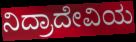
ನಿದ್ರಾದೇವಿಯ